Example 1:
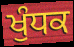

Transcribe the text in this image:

ਖੁੰਧਕ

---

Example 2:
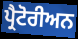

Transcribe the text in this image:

ਪ੍ਰੈਟੋਰੀਅਨ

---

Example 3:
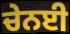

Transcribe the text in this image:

ਚੇਨਈ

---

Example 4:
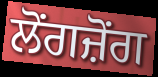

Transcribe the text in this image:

ਲੋਂਗਜ਼ੋਂਗ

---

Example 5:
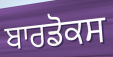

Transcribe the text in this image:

ਬਾਰਡੋਕਸ